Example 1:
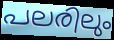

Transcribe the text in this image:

പലരിലും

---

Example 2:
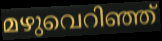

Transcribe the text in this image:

മഴുവെറിഞ്ഞ്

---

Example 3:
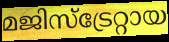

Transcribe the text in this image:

മജിസ്ട്രേറ്റായ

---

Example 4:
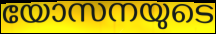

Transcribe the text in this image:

യോസനയുടെ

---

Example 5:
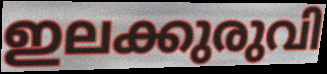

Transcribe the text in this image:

ഇലക്കുരുവി